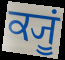
ਕ੍ਯੂਂ